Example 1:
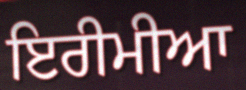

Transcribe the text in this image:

ਇਰੀਮੀਆ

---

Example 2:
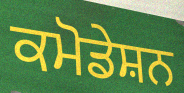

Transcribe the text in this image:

ਕਮੋਡੇਸ਼ਨ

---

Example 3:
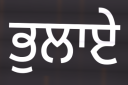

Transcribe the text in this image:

ਭੁਲਾਏ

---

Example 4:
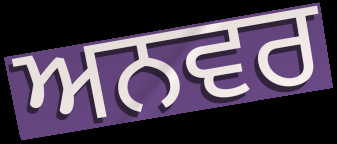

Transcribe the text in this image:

ਅਨਵਰ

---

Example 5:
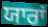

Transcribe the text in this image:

ਯਾਰਾਂ